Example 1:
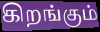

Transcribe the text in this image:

கிறங்கும்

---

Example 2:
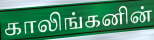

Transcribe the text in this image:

காலிங்கனின்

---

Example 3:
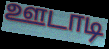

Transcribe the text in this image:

ஊடாடி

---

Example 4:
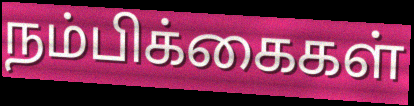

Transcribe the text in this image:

நம்பிக்கைகள்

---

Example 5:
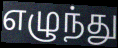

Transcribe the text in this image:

எழுந்து